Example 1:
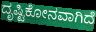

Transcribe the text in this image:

ದೃಷ್ಟಿಕೋನವಾಗಿದೆ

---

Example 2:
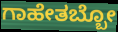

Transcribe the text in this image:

ಗಾಹೇತಬ್ಬೋ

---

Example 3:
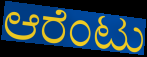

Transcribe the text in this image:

ಆರೆಂಟು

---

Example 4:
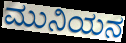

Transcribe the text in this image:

ಮುನಿಯನ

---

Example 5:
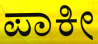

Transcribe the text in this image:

ಪಾಕೀ